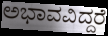
ಅಭಾವವಿದ್ದರೆ